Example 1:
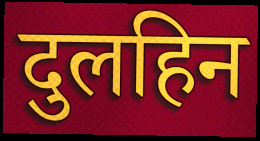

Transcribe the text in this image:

दुलहिन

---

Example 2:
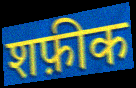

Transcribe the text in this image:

शफ़ीक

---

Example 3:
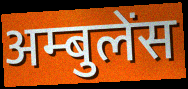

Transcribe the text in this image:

अम्बुलेंस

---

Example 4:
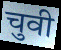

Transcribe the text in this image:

चुवी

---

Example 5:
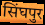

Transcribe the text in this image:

सिंघपुर